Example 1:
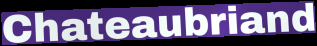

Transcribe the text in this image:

Chateaubriand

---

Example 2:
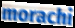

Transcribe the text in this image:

morachi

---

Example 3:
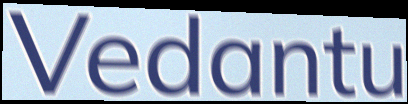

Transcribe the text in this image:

Vedantu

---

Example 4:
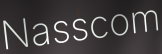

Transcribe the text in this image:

Nasscom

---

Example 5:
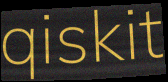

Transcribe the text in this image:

qiskit